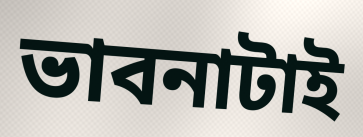
ভাবনাটাই